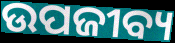
ଉପଜୀବ୍ୟ